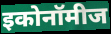
इकोनॉमीज